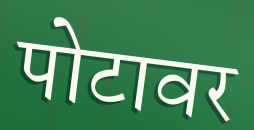
पोटावर